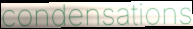
condensations